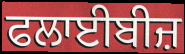
ਫਲਾਈਬੀਜ਼